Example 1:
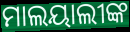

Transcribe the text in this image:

ମାଲୟାଲୀଙ୍କ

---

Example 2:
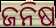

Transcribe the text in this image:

ଜନିଷ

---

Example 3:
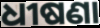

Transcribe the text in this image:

ଧୀଷଣା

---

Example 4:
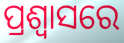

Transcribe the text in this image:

ପ୍ରଶ୍ଵାସରେ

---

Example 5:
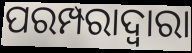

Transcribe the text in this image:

ପରମ୍ପରାଦ୍ବାରା